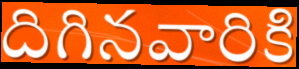
దిగినవారికి